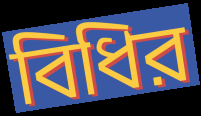
বিধির